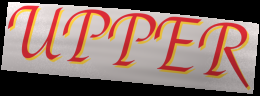
UPPER